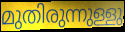
മുതിരുന്നുള്ളു